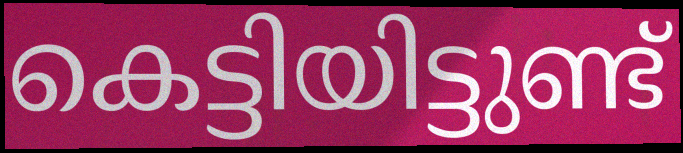
കെട്ടിയിട്ടുണ്ട്